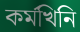
কৰ্মখিনি